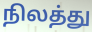
நிலத்து